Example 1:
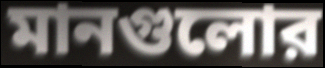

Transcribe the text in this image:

মানগুলোর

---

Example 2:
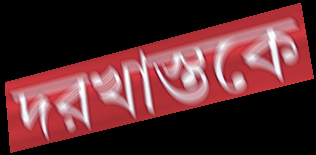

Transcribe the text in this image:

দরখাস্তকে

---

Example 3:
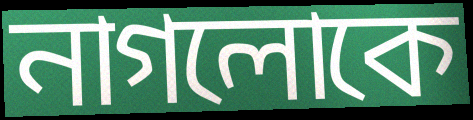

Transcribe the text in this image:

নাগলোকে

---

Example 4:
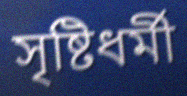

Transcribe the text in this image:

সৃষ্টিধর্মী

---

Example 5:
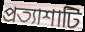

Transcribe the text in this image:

প্রত্যাশাটি